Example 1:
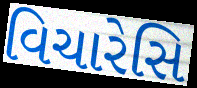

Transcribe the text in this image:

વિચારેસિ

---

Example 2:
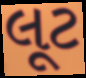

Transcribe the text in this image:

લૂટ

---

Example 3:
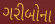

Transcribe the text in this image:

ગરીબોના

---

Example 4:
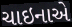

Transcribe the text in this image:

ચાઇનાએ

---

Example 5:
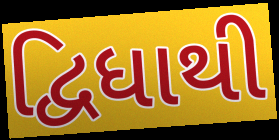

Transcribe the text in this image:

દ્વિધાથી